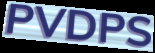
PVDPS